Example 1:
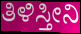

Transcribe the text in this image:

ತಿಳಿಸ್ತೀನಿ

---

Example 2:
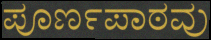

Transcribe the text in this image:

ಪೂರ್ಣಪಾಠವು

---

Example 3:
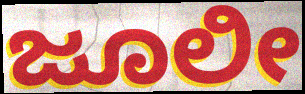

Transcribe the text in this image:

ಜೂಲೀ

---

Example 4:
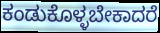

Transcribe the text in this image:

ಕಂಡುಕೊಳ್ಳಬೇಕಾದರೆ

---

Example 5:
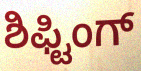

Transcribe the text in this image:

ಶಿಫ್ಟಿಂಗ್